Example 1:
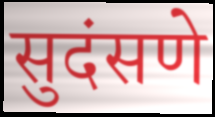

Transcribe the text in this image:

सुदंसणे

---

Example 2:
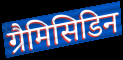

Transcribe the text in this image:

ग्रैमिसिडिन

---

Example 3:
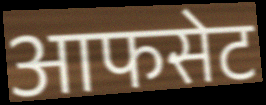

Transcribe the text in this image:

आफसेट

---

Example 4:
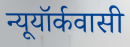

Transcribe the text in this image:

न्यूयॉर्कवासी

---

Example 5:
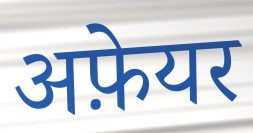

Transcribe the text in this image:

अफ़ेयर